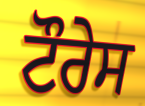
ਟੌਰੇਸ